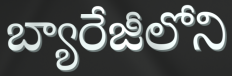
బ్యారేజీలోని